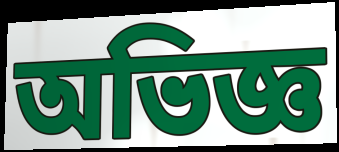
অভিজ্ঞ